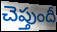
చెప్తుందీ